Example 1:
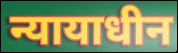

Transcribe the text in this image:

न्यायाधीन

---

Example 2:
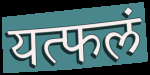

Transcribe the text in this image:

यत्फलं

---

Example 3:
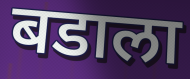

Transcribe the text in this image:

बडाला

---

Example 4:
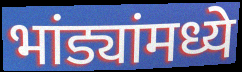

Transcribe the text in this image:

भांड्यांमध्ये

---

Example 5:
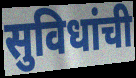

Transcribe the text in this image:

सुविधांची